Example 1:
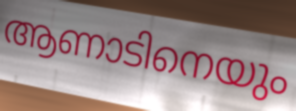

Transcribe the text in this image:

ആണാടിനെയും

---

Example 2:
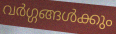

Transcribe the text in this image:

വർഗ്ഗങ്ങൾക്കും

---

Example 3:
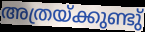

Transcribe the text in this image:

അത്രയ്ക്കുണ്ടു്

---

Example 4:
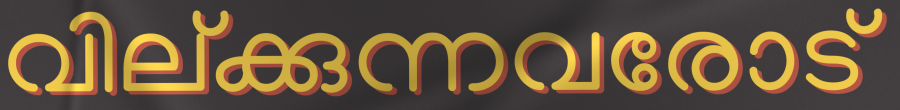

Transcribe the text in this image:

വില്ക്കുന്നവരോട്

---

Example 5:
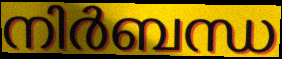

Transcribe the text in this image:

നിർബന്ധ